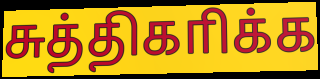
சுத்திகரிக்க